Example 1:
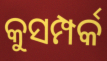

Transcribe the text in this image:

କୁସମ୍ପର୍କ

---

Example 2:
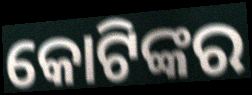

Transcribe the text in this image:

କୋଟିଙ୍କର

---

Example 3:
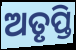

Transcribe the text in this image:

ଅତୃପ୍ତି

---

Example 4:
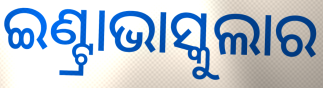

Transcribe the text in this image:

ଇଣ୍ଟ୍ରାଭାସ୍କୁଲାର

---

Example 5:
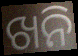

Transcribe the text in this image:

ଖନି